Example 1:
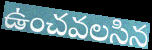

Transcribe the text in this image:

ఉంచవలసిన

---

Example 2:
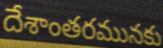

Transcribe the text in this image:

దేశాంతరమునకు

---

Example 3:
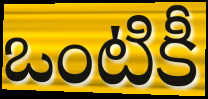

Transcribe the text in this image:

ఒంటికీ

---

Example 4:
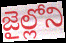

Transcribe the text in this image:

జైల్లోని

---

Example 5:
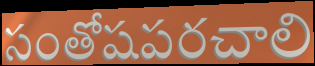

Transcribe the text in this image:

సంతోషపరచాలి